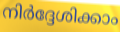
നിർദ്ദേശിക്കാം